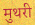
मुथरी